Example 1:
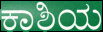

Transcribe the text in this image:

ಕಾಶಿಯ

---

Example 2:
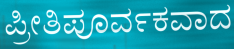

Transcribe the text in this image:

ಪ್ರೀತಿಪೂರ್ವಕವಾದ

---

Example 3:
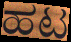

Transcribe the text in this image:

ಹಟ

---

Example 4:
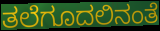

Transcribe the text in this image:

ತಲೆಗೂದಲಿನಂತೆ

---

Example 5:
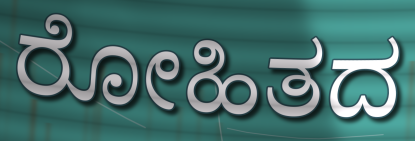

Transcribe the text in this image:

ರೋಹಿತದ